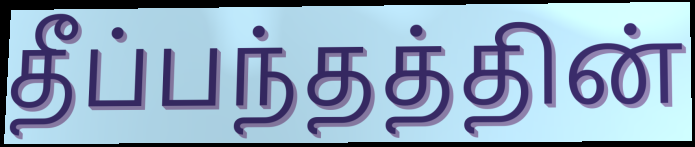
தீப்பந்தத்தின்